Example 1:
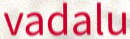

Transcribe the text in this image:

vadalu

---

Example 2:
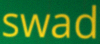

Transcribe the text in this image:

swad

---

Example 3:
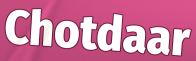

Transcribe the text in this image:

Chotdaar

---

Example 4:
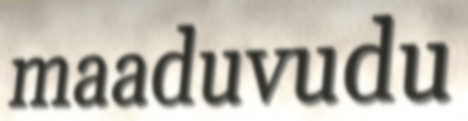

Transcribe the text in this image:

maaduvudu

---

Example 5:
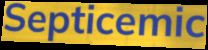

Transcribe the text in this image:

Septicemic